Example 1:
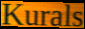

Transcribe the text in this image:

Kurals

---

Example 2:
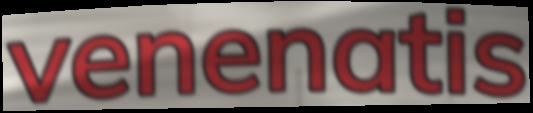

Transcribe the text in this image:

venenatis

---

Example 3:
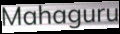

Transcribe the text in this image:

Mahaguru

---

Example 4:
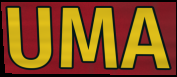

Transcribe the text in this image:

UMA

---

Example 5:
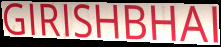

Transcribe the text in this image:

GIRISHBHAI